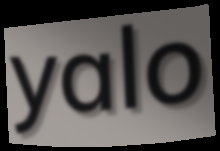
yalo